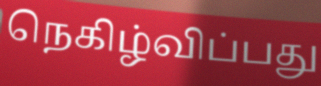
நெகிழ்விப்பது